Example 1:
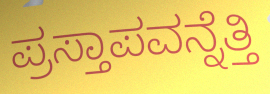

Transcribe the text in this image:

ಪ್ರಸ್ತಾಪವನ್ನೆತ್ತಿ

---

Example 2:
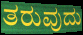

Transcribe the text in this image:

ತರುವುದು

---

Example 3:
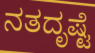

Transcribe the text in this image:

ನತದೃಷ್ಟೆ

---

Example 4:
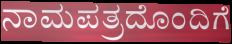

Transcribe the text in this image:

ನಾಮಪತ್ರದೊಂದಿಗೆ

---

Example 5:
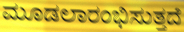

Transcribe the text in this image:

ಮೂಡಲಾರಂಭಿಸುತ್ತದೆ